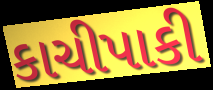
કાચીપાકી